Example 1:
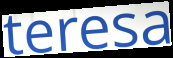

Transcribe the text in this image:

teresa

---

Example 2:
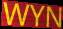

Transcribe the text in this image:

WYN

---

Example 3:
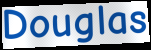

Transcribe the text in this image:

Douglas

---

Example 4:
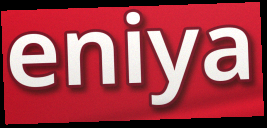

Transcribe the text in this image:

eniya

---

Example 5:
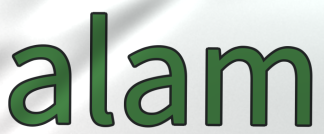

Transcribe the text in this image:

alam